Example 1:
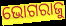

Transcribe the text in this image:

ଭୋଗରାଜୁ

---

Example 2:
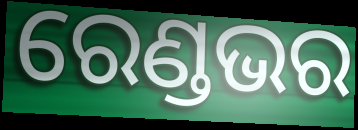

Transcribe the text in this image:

ରେଣ୍ଡଭର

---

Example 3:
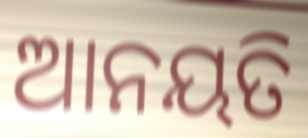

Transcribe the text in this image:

ଆନୟତି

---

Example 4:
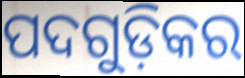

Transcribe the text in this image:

ପଦଗୁଡ଼ିକର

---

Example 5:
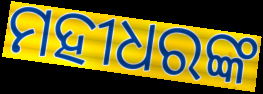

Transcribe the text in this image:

ମହୀଧରଙ୍କ